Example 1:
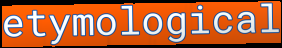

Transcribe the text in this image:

etymological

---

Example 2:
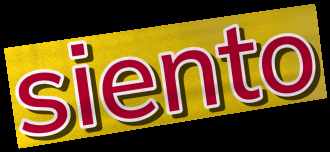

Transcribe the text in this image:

siento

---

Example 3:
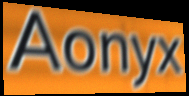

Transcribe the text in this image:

Aonyx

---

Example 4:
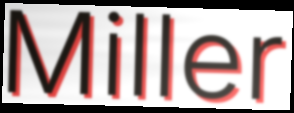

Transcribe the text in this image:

Miller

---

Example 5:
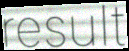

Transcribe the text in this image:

result